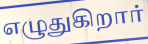
எழுதுகிறார்